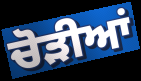
ਚੋੜੀਆਂ